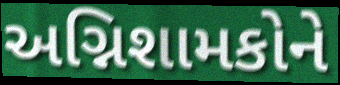
અગ્નિશામકોને